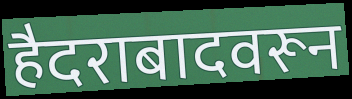
हैदराबादवरून